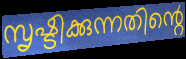
സൃഷ്ടിക്കുന്നതിന്റെ